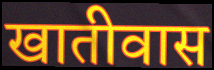
खातीवास